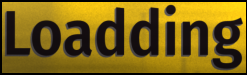
Loadding